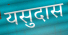
यसुदास